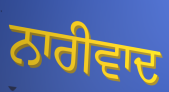
ਨਾਰੀਵਾਦ